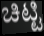
ಚಿಟ್ಟಿ